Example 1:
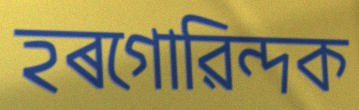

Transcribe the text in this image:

হৰগোৱিন্দক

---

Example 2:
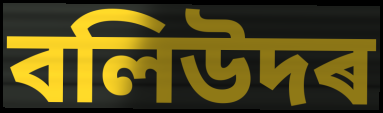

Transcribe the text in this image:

বলিউদৰ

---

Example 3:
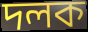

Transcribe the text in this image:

দলক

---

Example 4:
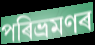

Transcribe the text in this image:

পৰিভ্ৰমণৰ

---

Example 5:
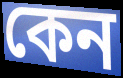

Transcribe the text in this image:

কেন